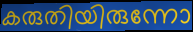
കരുതിയിരുന്നോ